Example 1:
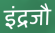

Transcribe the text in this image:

इंद्रजौ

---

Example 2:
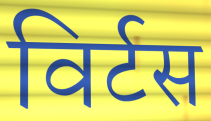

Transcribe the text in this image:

विर्टस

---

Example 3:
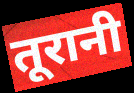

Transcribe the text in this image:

तूरानी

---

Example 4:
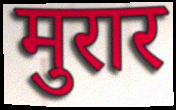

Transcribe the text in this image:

मुरार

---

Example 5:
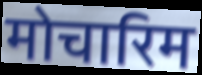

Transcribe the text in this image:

मोचारिम